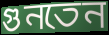
গুনতেন